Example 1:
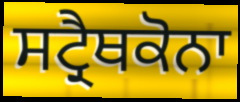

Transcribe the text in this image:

ਸਟ੍ਰੈਥਕੋਨਾ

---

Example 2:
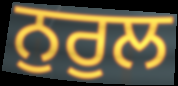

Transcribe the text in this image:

ਨੁਰੁਲ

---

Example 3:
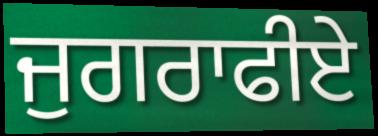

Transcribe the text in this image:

ਜੁਗਰਾਫੀਏ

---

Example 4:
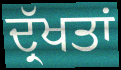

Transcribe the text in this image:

ਦ੍ਰੱਖਤਾਂ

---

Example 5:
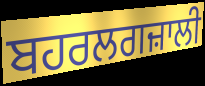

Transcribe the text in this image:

ਬਹਰਲਗਜ਼ਾਲੀ